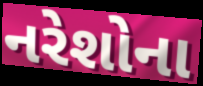
નરેશોના